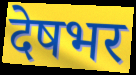
देषभर